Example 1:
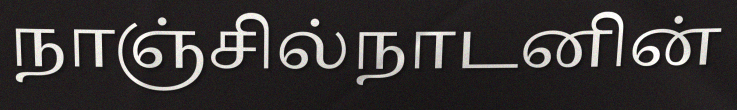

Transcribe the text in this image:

நாஞ்சில்நாடனின்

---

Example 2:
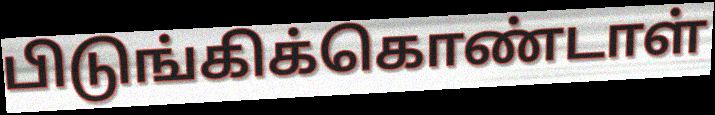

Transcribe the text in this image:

பிடுங்கிக்கொண்டாள்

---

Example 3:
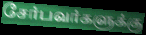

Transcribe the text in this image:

சேர்பவர்களுக்கு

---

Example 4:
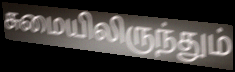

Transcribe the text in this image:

சுமையிலிருந்தும்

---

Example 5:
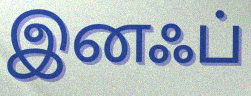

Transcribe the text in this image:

இனஃப்